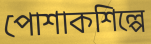
পোশাকশিল্পে